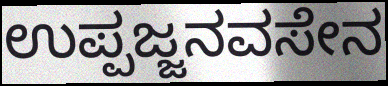
ಉಪ್ಪಜ್ಜನವಸೇನ